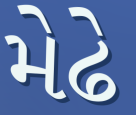
મેઢે